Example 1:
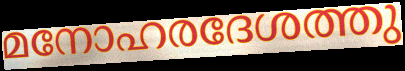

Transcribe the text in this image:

മനോഹരദേശത്തു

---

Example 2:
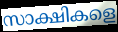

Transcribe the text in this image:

സാക്ഷികളെ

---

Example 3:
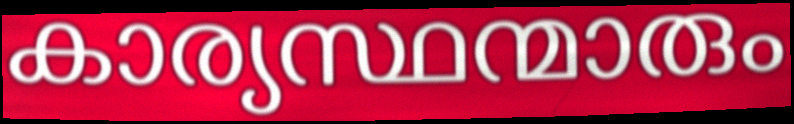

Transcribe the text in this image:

കാര്യസ്ഥന്മാരും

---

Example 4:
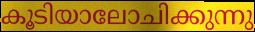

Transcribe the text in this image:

കൂടിയാലോചിക്കുന്നു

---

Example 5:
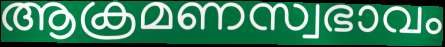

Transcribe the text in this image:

ആക്രമണസ്വഭാവം